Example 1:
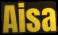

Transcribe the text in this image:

Aisa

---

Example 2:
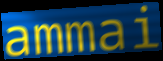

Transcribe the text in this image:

ammai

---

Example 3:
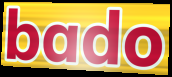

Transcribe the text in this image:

bado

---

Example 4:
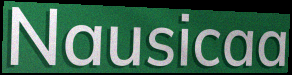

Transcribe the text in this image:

Nausicaa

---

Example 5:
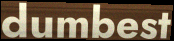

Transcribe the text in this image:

dumbest